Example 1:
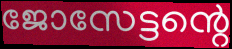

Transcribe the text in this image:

ജോസേട്ടന്റെ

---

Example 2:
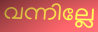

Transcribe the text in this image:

വന്നില്ലേ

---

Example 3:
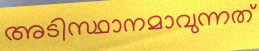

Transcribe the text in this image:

അടിസ്ഥാനമാവുന്നത്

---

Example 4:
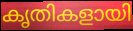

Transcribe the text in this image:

കൃതികളായി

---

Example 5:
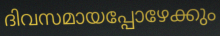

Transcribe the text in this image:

ദിവസമായപ്പോഴേക്കും